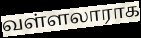
வள்ளலாராக